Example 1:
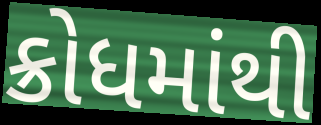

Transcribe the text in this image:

ક્રોધમાંથી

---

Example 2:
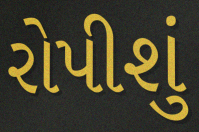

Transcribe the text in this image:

રોપીશું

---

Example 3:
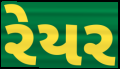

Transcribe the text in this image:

રેયર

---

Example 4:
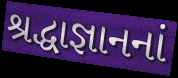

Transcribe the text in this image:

શ્રદ્ધાજ્ઞાનનાં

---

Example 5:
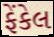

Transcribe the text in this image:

ફેંકેલ